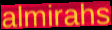
almirahs